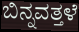
ಬಿನ್ನವತ್ತಳೆ